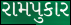
રામપુકાર